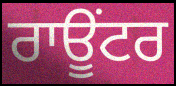
ਰਾਊਂਟਰ